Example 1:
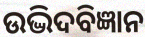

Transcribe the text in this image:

ଉଦ୍ଭିଦବିଜ୍ଞାନ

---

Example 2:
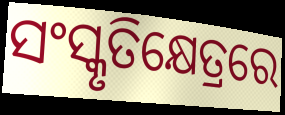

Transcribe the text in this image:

ସଂସ୍କୃତିକ୍ଷେତ୍ରରେ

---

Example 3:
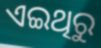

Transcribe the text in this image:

ଏଇଥିରୁ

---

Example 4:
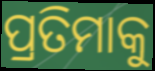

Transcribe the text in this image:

ପ୍ରତିମାକୁ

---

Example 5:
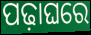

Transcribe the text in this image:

ପଢ଼ାଘରେ